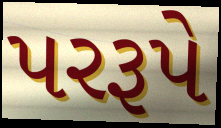
પરરૂપે